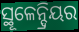
ସ୍ଥୂଳେନ୍ଦ୍ରିୟର